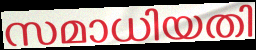
സമാധിയതി